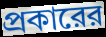
প্রকারের